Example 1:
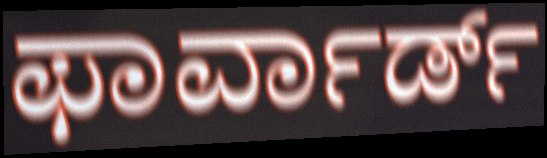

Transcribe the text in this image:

ಫಾರ್ವಾರ್ಡ್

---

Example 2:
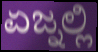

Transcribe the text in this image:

ಏಜ್ನಲ್ಲಿ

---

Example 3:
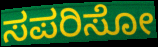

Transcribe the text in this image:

ಸಪರಿಸೋ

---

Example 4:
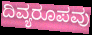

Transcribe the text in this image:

ದಿವ್ಯರೂಪವು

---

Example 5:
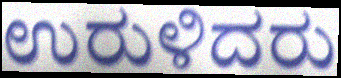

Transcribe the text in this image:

ಉರುಳಿದರು